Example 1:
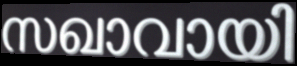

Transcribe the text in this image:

സഖാവായി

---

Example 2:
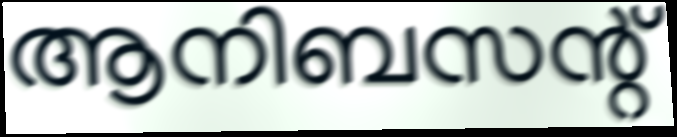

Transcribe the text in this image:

ആനിബസന്റ്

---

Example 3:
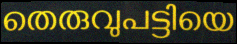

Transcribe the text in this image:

തെരുവുപട്ടിയെ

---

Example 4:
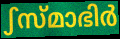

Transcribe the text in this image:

ഽസ്മാഭിർ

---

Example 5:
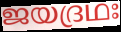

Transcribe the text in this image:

ജയദ്രഥഃ